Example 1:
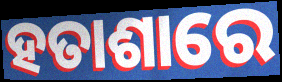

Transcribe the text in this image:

ହତାଶାରେ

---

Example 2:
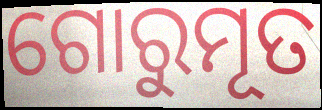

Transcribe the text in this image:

ଗୋରୁମୂତ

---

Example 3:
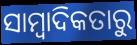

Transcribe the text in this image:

ସାମ୍ବାଦିକତାରୁ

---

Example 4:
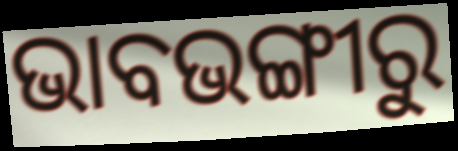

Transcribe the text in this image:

ଭାବଭଙ୍ଗୀରୁ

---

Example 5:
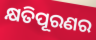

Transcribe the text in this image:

କ୍ଷତିପୂରଣର